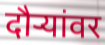
दौर्‍यांवर